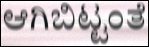
ಆಗಿಬಿಟ್ಟಂತೆ